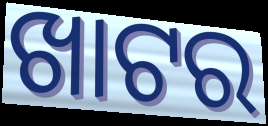
ଖାଟର